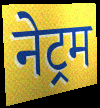
नेट्रम